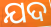
ଯଦ